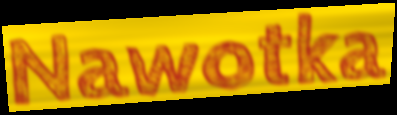
Nawotka